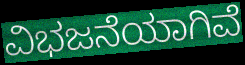
ವಿಭಜನೆಯಾಗಿವೆ